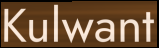
Kulwant